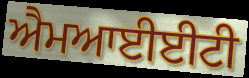
ਐਮਆਈਈਟੀ